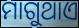
ମାଗୁଥାଏ